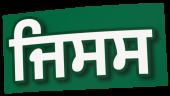
ਜਿਸਸ